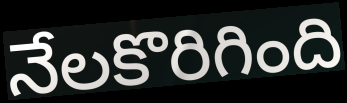
నేలకొరిగింది